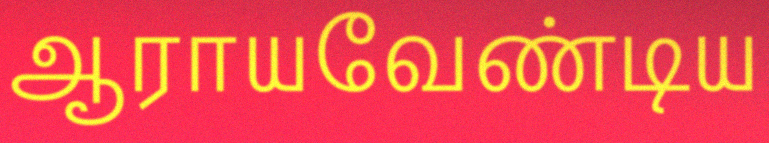
ஆராயவேண்டிய